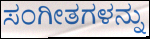
ಸಂಗೀತಗಳನ್ನು